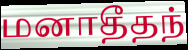
மனாதீதந்